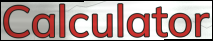
Calculator